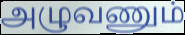
அழுவணும்